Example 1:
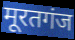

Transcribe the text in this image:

मूरतगंज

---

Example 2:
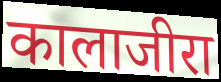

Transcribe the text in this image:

कालाजीरा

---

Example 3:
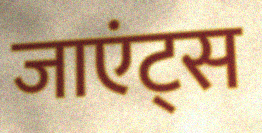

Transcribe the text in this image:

जाएंट्स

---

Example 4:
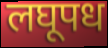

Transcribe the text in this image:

लघूपध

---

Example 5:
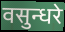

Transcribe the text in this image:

वसुन्धरे